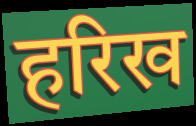
हरिख